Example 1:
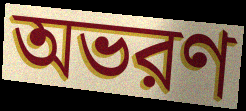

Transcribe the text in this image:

অভরণ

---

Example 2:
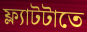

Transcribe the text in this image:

ফ্ল্যাটটাতে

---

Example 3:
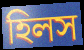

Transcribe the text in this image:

হিলস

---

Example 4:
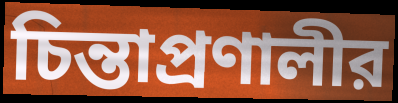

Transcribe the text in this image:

চিন্তাপ্রণালীর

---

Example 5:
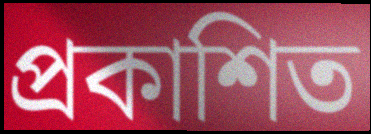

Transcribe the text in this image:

প্রকাশিত